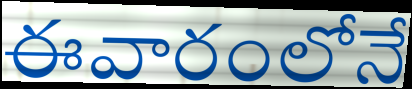
ఈవారంలోనే